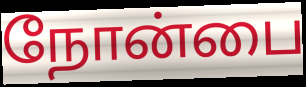
நோன்பை